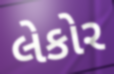
લેકોર